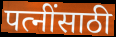
पत्नींसाठी